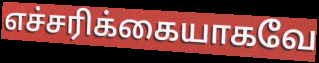
எச்சரிக்கையாகவே